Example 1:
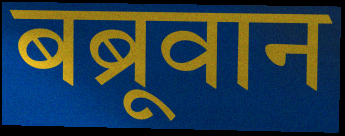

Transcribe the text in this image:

बब्रूवान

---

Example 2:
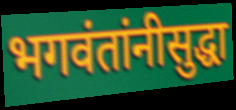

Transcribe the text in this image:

भगवंतांनीसुद्धा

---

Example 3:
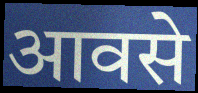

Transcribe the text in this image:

आवसे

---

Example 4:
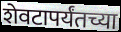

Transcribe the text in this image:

शेवटापर्यंतच्या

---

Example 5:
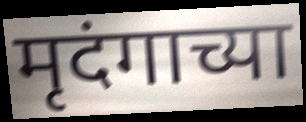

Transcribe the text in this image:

मृदंगाच्या